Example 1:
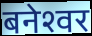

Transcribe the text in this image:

बनेश्वर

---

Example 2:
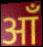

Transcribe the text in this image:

आँ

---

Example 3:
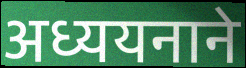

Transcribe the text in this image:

अध्ययनाने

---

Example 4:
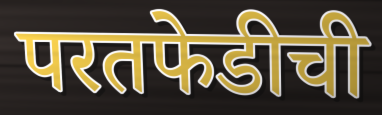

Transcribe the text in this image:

परतफेडीची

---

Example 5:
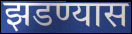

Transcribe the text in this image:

झडण्यास